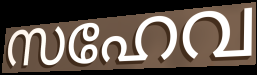
സഹേവ